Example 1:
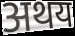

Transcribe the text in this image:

अथय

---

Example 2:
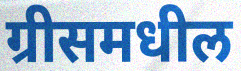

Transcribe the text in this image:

ग्रीसमधील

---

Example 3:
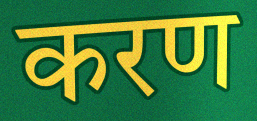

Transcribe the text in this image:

करण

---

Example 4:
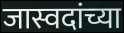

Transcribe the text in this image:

जास्वदांच्या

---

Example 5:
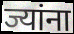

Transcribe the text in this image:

ज्यांना